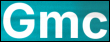
Gmc